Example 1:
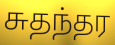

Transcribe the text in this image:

சுதந்தர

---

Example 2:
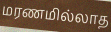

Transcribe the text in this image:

மரணமில்லாத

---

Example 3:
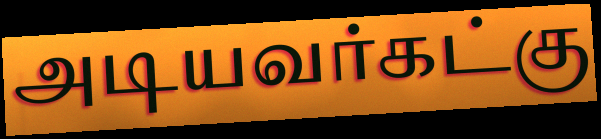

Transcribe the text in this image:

அடியவர்கட்கு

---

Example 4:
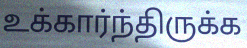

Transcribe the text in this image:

உக்கார்ந்திருக்க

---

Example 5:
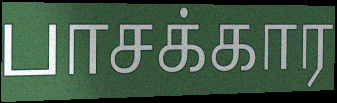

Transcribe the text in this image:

பாசக்கார